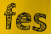
fes